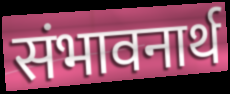
संभावनार्थ